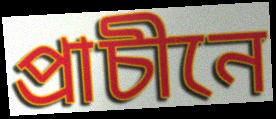
প্ৰাচীনে